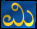
ಮಿ